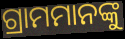
ଗ୍ରାମମାନଙ୍କୁ